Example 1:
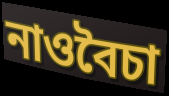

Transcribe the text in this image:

নাওবৈচা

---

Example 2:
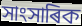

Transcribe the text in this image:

সাংসাৰিক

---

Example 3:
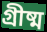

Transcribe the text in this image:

গ্ৰীষ্ম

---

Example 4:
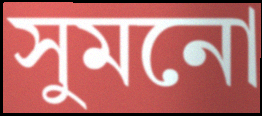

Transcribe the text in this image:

সুমনো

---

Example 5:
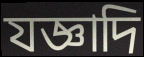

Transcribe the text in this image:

যজ্ঞাদি